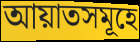
আয়াতসমূহে